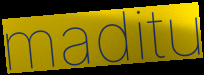
maditu